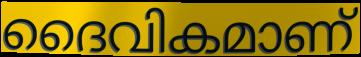
ദൈവികമാണ്